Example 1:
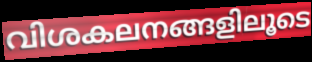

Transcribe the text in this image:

വിശകലനങ്ങളിലൂടെ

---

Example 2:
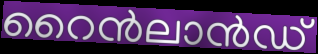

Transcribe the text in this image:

റൈൻലാൻഡ്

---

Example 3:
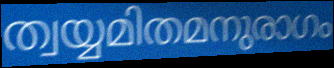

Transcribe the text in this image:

ത്വയ്യമിതമനുരാഗം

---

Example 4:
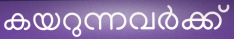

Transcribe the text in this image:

കയറുന്നവർക്ക്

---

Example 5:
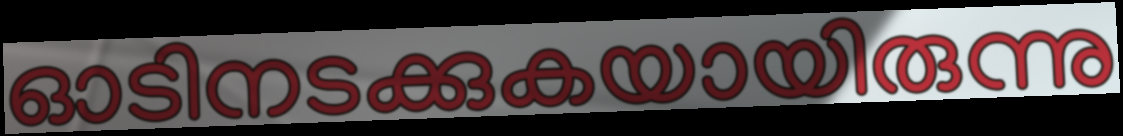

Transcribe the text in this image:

ഓടിനടക്കുകയായിരുന്നു